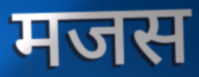
मजस